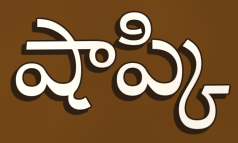
షాప్కి